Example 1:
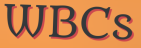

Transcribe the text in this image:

WBCs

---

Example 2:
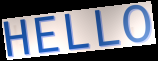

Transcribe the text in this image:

HELLO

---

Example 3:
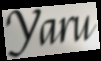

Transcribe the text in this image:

Yaru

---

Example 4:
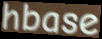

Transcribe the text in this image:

hbase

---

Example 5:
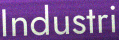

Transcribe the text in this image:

Industri